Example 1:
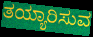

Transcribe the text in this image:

ತಯ್ಯಾರಿಸುವ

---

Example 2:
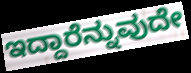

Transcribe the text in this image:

ಇದ್ದಾರೆನ್ನುವುದೇ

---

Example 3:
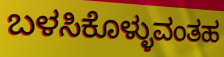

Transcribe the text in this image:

ಬಳಸಿಕೊಳ್ಳುವಂತಹ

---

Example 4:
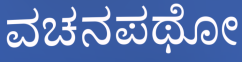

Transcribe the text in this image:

ವಚನಪಥೋ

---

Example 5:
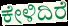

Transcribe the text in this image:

ಕೇಳಿದಿರೆ